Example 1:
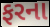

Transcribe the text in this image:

ફરના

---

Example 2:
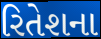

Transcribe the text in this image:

રિતેશના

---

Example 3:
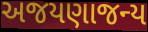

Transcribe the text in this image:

અજયણાજન્ય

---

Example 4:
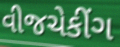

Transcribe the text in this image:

વીજચેકીંગ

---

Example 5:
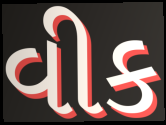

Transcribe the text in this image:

વીક